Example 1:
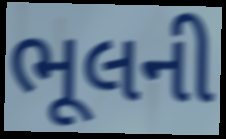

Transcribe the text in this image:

ભૂલની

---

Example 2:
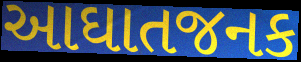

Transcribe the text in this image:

આઘાતજનક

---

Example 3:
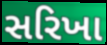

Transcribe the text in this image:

સરિખા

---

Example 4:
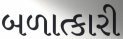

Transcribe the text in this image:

બળાત્કારી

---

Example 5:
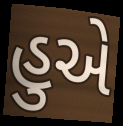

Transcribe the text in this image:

હુએ